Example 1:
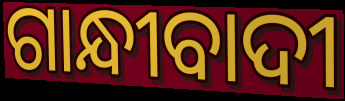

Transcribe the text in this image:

ଗାନ୍ଧୀବାଦୀ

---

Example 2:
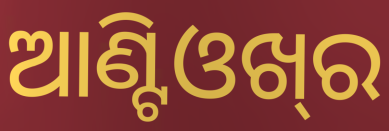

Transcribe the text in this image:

ଆଣ୍ଟିଓଖ୍‍ର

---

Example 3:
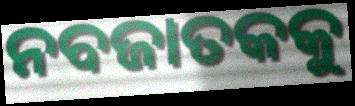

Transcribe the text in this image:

ନବଜାତକକୁ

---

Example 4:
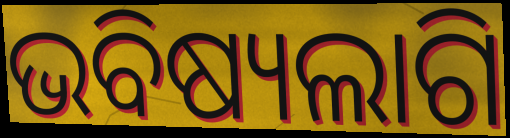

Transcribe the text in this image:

ଭବିଷ୍ୟଲାଗି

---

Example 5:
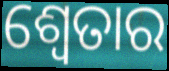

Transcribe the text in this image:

ଶ୍ଵେତାର